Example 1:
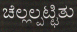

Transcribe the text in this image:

ಚೆಲ್ಲಲ್ಪಟ್ಟಿತು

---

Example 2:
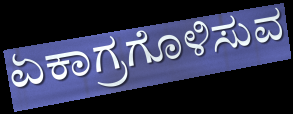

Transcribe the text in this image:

ಏಕಾಗ್ರಗೊಳಿಸುವ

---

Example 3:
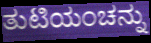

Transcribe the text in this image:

ತುಟಿಯಂಚನ್ನು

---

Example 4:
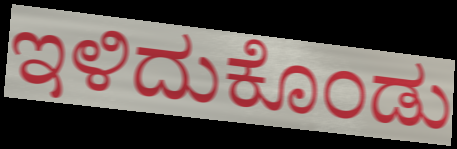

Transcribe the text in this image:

ಇಳಿದುಕೊಂಡು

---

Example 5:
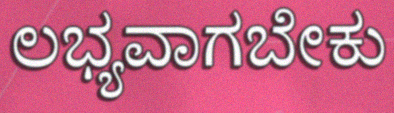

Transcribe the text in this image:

ಲಭ್ಯವಾಗಬೇಕು